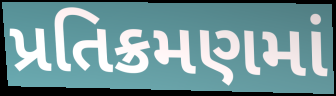
પ્રતિક્રમણમાં